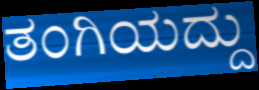
ತಂಗಿಯದ್ದು